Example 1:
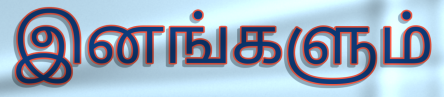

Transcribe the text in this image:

இனங்களும்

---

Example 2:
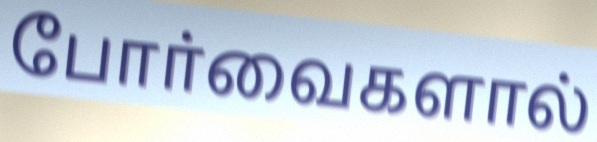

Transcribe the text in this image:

போர்வைகளால்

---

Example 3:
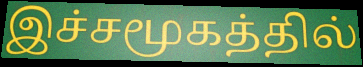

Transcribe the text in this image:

இச்சமூகத்தில்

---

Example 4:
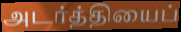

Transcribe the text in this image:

அடர்த்தியைப்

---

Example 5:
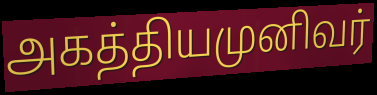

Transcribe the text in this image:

அகத்தியமுனிவர்